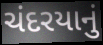
ચંદરયાનું